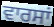
ਵਾਰਸਾਂ